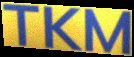
TKM